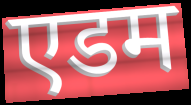
एडम